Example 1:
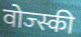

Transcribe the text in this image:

वोज्स्की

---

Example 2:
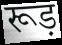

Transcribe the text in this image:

रूड़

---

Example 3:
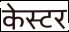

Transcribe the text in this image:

केस्टर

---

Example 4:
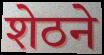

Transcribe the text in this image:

शेठने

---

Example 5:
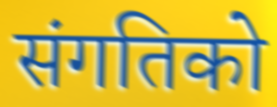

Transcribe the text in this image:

संगतिको